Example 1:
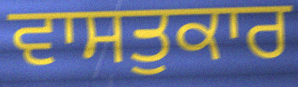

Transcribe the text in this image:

ਵਾਸਤੁਕਾਰ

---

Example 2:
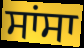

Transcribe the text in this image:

ਸਾਂਸਾ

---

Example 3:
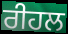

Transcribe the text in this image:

ਰੀਹਲ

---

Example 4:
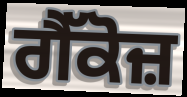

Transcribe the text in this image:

ਗੈੱਕੋਜ਼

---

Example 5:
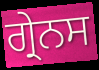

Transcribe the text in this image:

ਗ੍ਰੇਨਸ